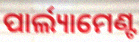
ପାର୍ଲ୍ୟାମେଣ୍ଟ